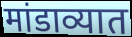
मांडाव्यात